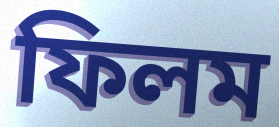
ফিলম